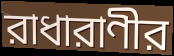
রাধারাণীর